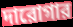
দারোগার